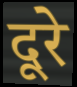
दूरे